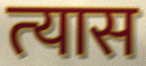
त्‍यास